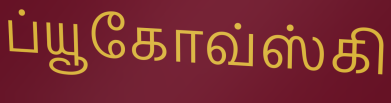
ப்யூகோவ்ஸ்கி